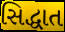
સિદ્ધાત